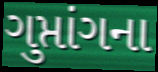
ગુપ્તાંગના